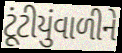
ટૂંટીયુંવાળીને